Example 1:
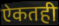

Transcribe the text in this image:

ऐकतही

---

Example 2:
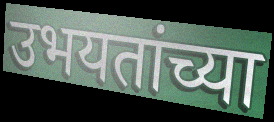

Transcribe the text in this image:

उभयतांच्या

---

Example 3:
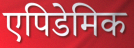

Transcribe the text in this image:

एपिडेमिक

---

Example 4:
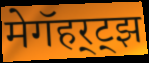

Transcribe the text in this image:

मेगॅहर्ट्झ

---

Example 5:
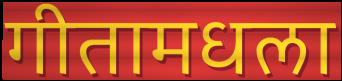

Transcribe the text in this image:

गीतामधला